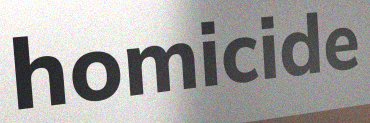
homicide